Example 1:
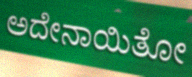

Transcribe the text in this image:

ಅದೇನಾಯಿತೋ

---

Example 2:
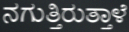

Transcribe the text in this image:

ನಗುತ್ತಿರುತ್ತಾಳೆ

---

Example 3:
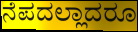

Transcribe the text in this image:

ನೆಪದಲ್ಲಾದರೂ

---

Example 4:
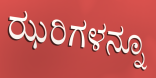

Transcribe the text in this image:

ಝರಿಗಳನ್ನೂ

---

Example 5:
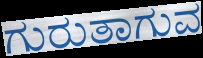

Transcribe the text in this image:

ಗುರುತಾಗುವ